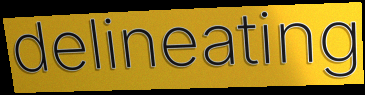
delineating